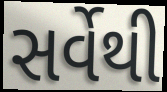
સર્વેથી